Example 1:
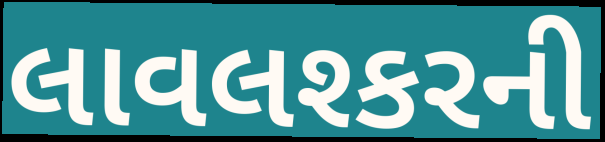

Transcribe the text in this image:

લાવલશ્કરની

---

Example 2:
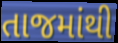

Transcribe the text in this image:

તાજમાંથી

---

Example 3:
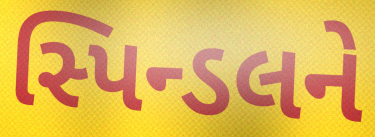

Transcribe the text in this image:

સ્પિન્ડલને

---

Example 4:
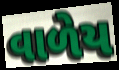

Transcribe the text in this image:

વાળેય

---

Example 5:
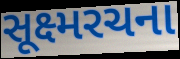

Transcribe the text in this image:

સૂક્ષ્મરચના